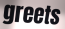
greets